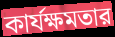
কার্যক্ষমতার